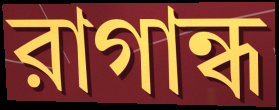
রাগান্ধ